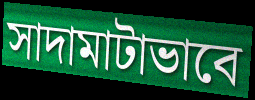
সাদামাটাভাবে